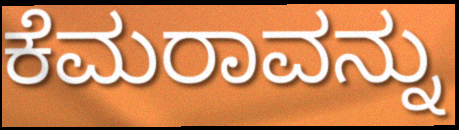
ಕೆಮರಾವನ್ನು